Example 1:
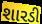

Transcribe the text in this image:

શારડી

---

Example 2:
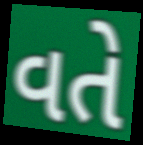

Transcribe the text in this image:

વતે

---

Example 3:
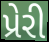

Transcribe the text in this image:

પ્રેરી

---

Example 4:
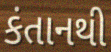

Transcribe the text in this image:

કંતાનથી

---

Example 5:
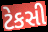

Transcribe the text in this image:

ટેકસી